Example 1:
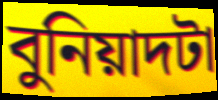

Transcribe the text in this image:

বুনিয়াদটা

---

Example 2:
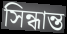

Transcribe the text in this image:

সিন্ধান্ত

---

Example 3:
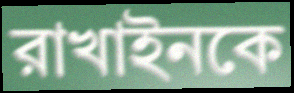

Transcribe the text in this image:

রাখাইনকে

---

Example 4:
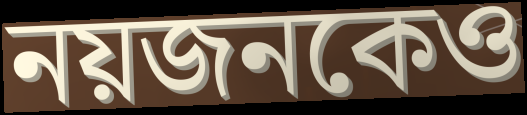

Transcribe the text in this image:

নয়জনকেও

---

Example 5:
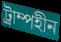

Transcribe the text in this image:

ট্রাম্পহীন